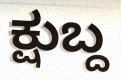
ಕ್ಷುಬ್ದ